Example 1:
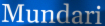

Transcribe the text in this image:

Mundari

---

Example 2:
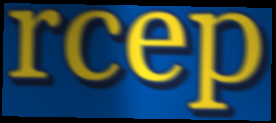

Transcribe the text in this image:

rcep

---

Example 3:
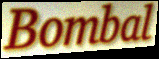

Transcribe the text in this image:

Bombal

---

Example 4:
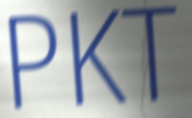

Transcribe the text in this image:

PKT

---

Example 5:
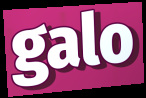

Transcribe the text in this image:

galo